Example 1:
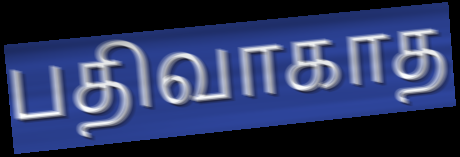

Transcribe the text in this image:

பதிவாகாத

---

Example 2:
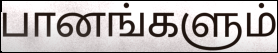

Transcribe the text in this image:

பானங்களும்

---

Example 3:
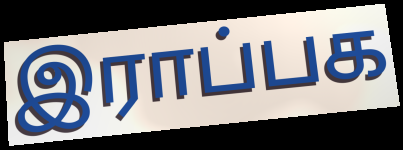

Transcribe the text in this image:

இராப்பக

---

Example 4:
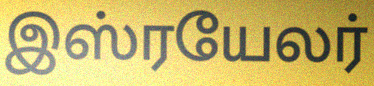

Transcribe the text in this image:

இஸ்ரயேலர்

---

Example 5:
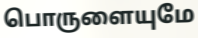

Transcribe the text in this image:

பொருளையுமே